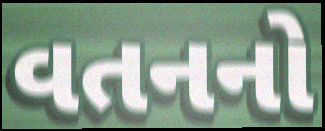
વતનનો